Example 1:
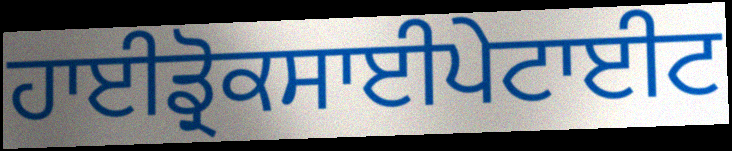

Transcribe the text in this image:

ਹਾਈਡ੍ਰੋਕਸਾਈਪੇਟਾਈਟ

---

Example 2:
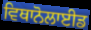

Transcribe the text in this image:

ਵਿਥਾਨੋਲਾਈਡ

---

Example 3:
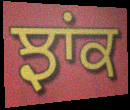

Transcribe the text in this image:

ਝਾਂਕ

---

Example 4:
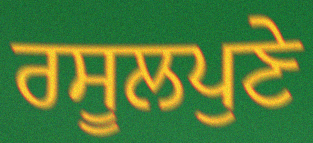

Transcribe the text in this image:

ਰਸੂਲਪੁਣੇ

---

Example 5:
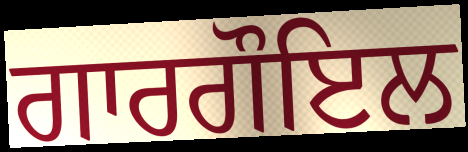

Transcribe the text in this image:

ਗਾਰਗੌਇਲ